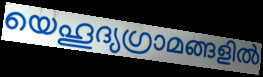
യെഹൂദ്യഗ്രാമങ്ങളിൽ